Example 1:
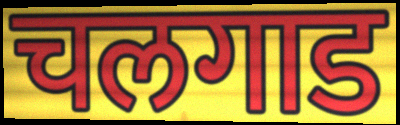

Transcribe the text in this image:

चलगाड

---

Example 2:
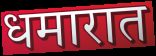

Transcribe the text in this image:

धमारात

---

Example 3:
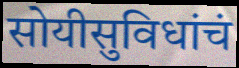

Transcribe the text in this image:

सोयीसुविधांचं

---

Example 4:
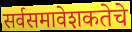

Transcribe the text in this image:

सर्वसमावेशकतेचे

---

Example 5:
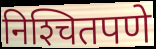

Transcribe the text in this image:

निश्‍चितपणे